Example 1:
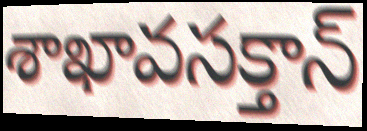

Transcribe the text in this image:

శాఖావసక్తాన్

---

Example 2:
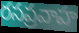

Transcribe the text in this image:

రసప్రవాహ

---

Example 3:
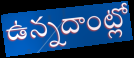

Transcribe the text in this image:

ఉన్నదాంట్లో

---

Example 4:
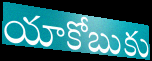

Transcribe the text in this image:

యాకోబుకు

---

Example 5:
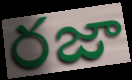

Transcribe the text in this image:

రజా